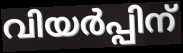
വിയർപ്പിന്